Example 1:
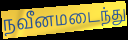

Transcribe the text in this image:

நவீனமடைந்து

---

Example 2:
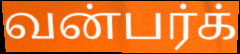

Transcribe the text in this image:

வன்பர்க்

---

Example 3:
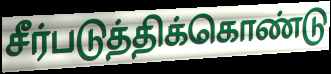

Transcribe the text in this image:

சீர்படுத்திக்கொண்டு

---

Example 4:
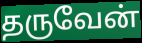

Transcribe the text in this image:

தருவேன்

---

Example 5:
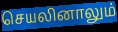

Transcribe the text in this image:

செயலினாலும்